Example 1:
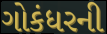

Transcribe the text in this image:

ગોકંધરની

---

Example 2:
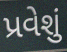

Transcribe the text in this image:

પ્રવેશું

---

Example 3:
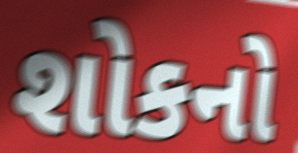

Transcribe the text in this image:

શોકનો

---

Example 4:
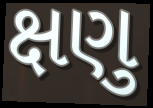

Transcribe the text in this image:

ક્ષણુ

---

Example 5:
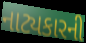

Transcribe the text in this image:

નાટ્યકારની